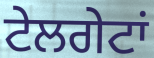
ਟੇਲਗੇਟਾਂ